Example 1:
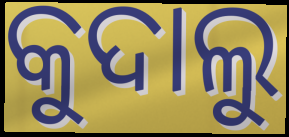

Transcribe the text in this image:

କୁଦାଲୁ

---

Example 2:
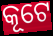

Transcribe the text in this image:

କୂଟେ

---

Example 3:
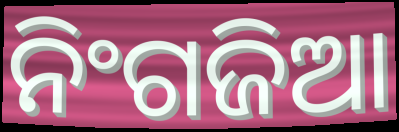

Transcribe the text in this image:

ନିଂଗଜିଆ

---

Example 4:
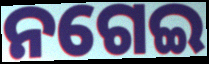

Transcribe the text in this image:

ନଗେଇ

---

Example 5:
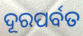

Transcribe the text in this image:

ଦୂରପର୍ବତ